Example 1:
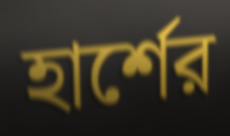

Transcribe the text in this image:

হার্শের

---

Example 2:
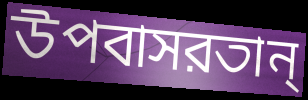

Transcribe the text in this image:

উপবাসরতান্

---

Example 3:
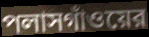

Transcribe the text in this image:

পলাসগাঁওয়ের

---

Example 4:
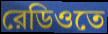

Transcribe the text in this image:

রেডিওতে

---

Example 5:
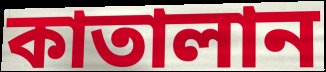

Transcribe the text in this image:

কাতালান